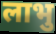
लाभु